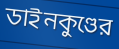
ডাইনকুণ্ডের